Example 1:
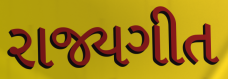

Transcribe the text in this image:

રાજ્યગીત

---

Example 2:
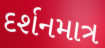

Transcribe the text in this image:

દર્શનમાત્ર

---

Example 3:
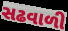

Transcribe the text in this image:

સઢવાળી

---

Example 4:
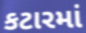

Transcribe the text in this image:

કટારમાં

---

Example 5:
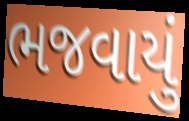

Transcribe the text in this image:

ભજવાયું